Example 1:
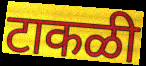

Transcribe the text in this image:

टाकळी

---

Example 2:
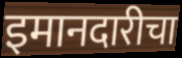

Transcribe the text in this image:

इमानदारीचा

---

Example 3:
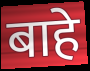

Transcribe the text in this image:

बाहे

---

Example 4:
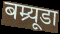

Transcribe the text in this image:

बम्र्यूडा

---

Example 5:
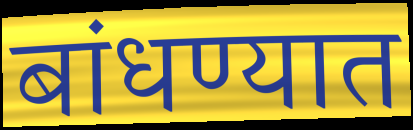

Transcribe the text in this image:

बांधण्यात